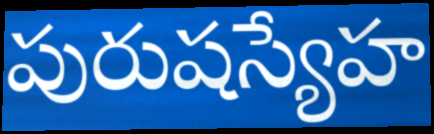
పురుషస్యేహ